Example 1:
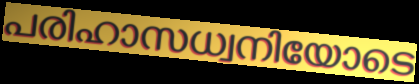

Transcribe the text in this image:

പരിഹാസധ്വനിയോടെ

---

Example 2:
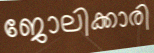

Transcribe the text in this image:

ജോലിക്കാരി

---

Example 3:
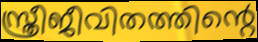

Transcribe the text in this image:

സ്ത്രീജീവിതത്തിന്റെ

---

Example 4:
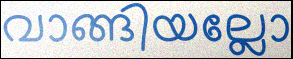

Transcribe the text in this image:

വാങ്ങിയല്ലോ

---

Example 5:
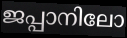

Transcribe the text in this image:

ജപ്പാനിലോ